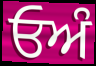
ਓਅੰ